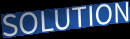
SOLUTION